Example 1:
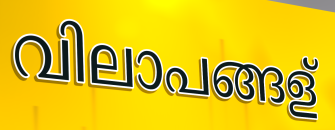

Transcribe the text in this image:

വിലാപങ്ങള്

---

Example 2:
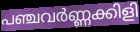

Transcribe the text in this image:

പഞ്ചവർണ്ണക്കിളി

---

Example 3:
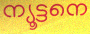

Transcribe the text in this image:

ന്യൂട്ടനെ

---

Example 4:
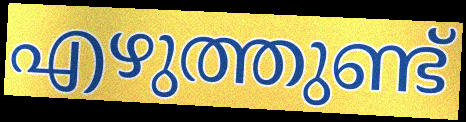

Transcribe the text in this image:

എഴുത്തുണ്ട്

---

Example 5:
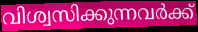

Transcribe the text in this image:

വിശ്വസിക്കുന്നവർക്ക്